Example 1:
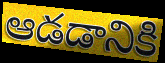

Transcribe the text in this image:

ఆడడానికి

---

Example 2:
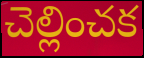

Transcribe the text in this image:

చెల్లించక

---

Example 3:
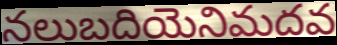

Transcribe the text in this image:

నలుబదియెనిమదవ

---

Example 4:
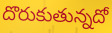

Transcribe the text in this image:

దొరుకుతున్నదో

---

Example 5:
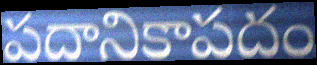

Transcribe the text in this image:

పదానికాపదం